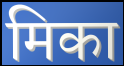
मिका